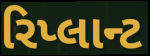
રિપ્લાન્ટ